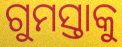
ଗୁମସ୍ତାକୁ